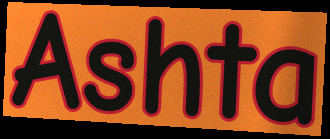
Ashta